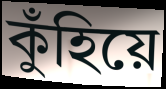
কুঁহিয়ে